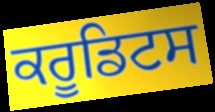
ਕਰੂਡਿਟਸ